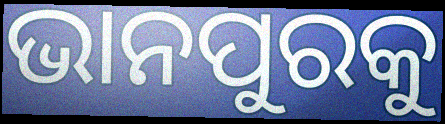
ଭାନପୁରକୁ